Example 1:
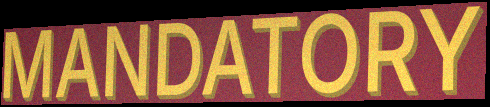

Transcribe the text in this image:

MANDATORY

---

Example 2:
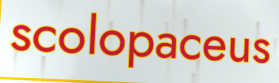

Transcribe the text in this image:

scolopaceus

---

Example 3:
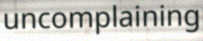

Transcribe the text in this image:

uncomplaining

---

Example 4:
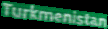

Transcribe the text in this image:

Turkmenistan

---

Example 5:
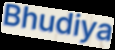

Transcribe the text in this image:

Bhudiya